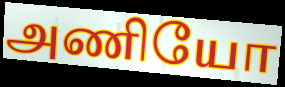
அணியோ